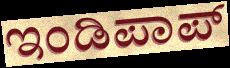
ಇಂಡಿಪಾಪ್